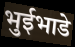
भुईभाडे